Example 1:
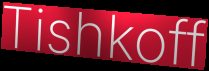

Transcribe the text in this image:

Tishkoff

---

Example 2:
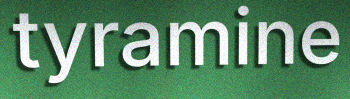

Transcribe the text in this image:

tyramine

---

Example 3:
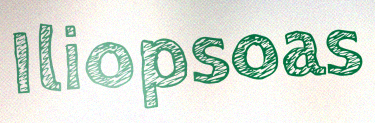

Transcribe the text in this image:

Iliopsoas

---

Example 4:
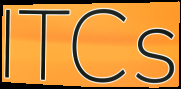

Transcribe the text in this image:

ITCs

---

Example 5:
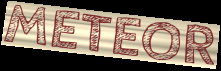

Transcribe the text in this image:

METEOR